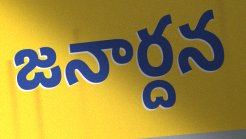
జనార్దన